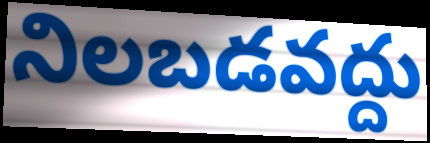
నిలబడవద్దు